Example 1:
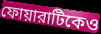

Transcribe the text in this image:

ফোয়ারাটিকেও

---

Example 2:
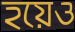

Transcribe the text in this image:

হয়েও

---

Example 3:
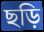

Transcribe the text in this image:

ছড়ি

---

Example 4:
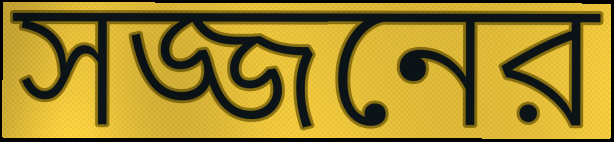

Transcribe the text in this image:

সজ্জনের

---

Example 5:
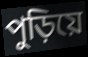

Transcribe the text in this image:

পুড়িয়ে